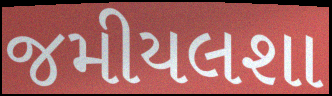
જમીયલશા